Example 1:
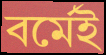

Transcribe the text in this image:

বর্মেই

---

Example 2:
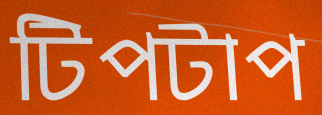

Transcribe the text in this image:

টিপটাপ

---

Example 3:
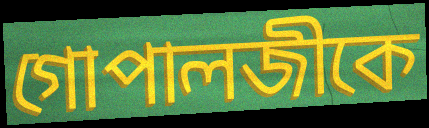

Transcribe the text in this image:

গোপালজীকে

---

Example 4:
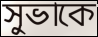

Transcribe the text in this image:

সুভাকে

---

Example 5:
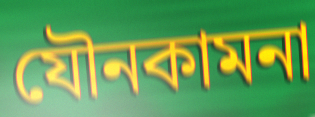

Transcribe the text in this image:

যৌনকামনা